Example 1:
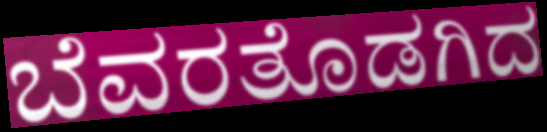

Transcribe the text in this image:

ಬೆವರತೊಡಗಿದ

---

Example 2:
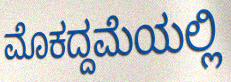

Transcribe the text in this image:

ಮೊಕದ್ದಮೆಯಲ್ಲಿ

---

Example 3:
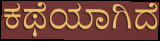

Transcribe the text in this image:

ಕಥೆಯಾಗಿದೆ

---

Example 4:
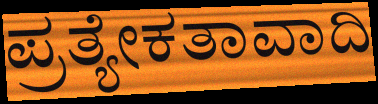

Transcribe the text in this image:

ಪ್ರತ್ಯೇಕತಾವಾದಿ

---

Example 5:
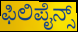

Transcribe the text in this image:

ಫಿಲಿಪೈನ್ಸ್